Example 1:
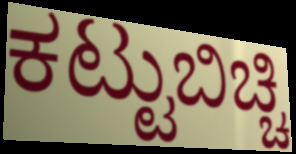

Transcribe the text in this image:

ಕಟ್ಟುಬಿಚ್ಚಿ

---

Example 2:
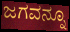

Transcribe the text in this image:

ಜಗವನ್ನೂ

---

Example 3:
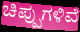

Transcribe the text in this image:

ಚಿಪ್ಪುಗಳಿವೆ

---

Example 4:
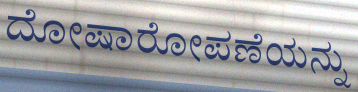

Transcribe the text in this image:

ದೋಷಾರೋಪಣೆಯನ್ನು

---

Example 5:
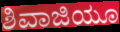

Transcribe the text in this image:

ಶಿವಾಜಿಯೂ